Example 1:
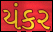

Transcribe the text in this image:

યંકર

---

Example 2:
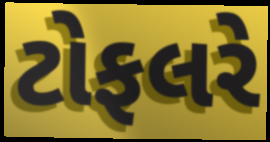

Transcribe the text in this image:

ટોફલરે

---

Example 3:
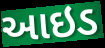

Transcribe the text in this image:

આઇડ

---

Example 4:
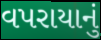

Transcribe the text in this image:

વપરાયાનું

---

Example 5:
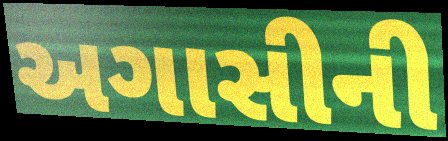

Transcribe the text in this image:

અગાસીની